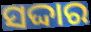
ସଦ୍ଦାର